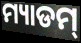
ମ୍ୟାଡମ୍